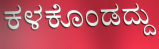
ಕಳಕೊಂಡದ್ದು